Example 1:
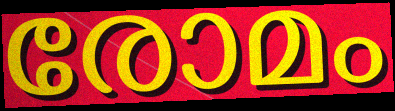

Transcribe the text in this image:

രോമം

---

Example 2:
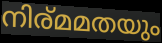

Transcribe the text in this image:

നിര്മമതയും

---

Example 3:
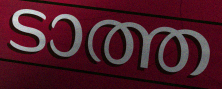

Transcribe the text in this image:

ടാത്ത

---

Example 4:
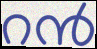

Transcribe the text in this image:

റൻ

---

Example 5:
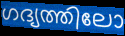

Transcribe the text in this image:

ഗദ്യത്തിലോ